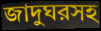
জাদুঘরসহ